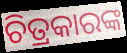
ଚିତ୍ରକାରଙ୍କ